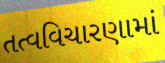
તત્વવિચારણામાં